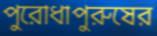
পুরোধাপুরুষের